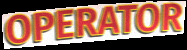
OPERATOR